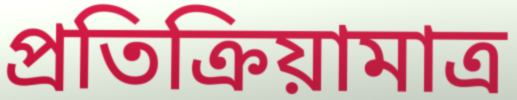
প্রতিক্রিয়ামাত্র